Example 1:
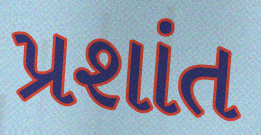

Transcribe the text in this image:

પ્રશાંત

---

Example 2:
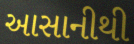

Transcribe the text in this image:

આસાનીથી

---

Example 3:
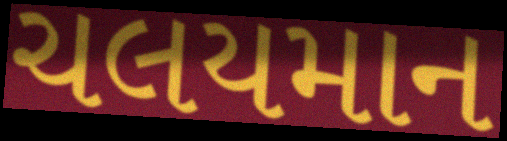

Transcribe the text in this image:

ચલયમાન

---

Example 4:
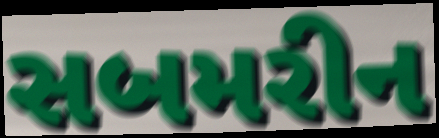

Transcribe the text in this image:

સબમરીન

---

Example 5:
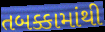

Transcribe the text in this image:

તબક્કામાંથી